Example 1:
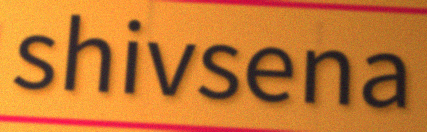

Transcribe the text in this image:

shivsena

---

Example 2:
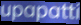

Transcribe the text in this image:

upapatti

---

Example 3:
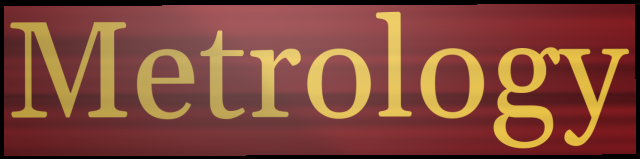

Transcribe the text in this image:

Metrology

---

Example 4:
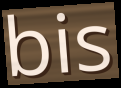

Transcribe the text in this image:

bis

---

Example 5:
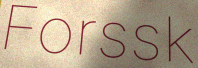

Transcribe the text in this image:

Forssk